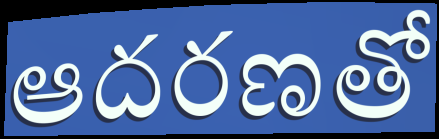
ఆదరణతో